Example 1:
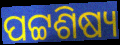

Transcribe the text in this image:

ପଟ୍ଟଶିଷ୍ୟ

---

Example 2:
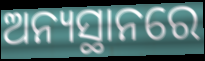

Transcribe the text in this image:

ଅନ୍ୟସ୍ଥାନରେ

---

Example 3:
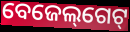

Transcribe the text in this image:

ବେଜେଲ୍‌ଗେଟ୍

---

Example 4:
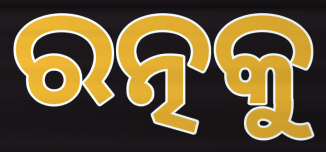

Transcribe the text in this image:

ରତ୍ନକୁ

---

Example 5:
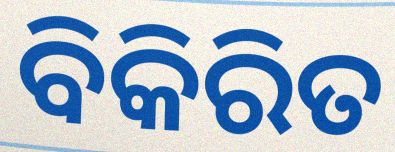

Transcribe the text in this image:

ବିକିରିତ